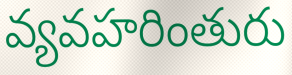
వ్యవహరింతురు